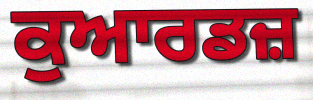
ਕੁਆਰਡਜ਼